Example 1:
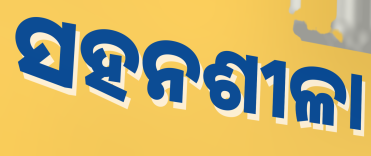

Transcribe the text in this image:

ସହନଶୀଳା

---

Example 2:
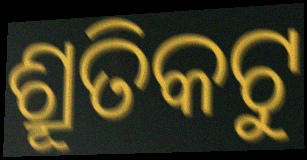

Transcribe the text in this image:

ଶ୍ରୂତିକଟୁ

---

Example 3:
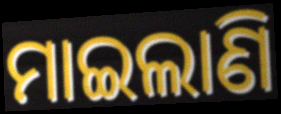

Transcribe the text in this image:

ମାଇଲାଣି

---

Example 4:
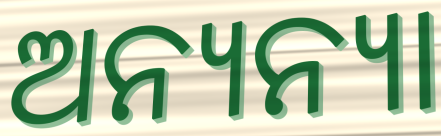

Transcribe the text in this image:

ଅନ୍ୟନ୍ୟା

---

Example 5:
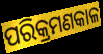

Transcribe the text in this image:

ପରିକ୍ରମଣକାଳ